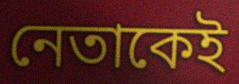
নেতাকেই